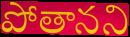
పోతానని